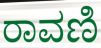
ರಾವಣಿ